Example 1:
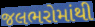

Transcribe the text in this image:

જલભરોમાંથી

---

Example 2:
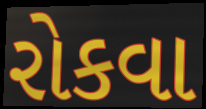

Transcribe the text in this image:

રોકવા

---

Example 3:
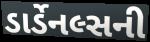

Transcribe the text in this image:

ડાર્ડેનલ્સની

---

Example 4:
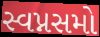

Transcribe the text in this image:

સ્વપ્નસમો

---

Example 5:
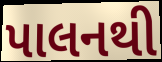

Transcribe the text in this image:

પાલનથી